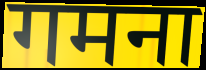
गमना